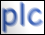
plc